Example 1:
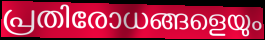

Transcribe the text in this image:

പ്രതിരോധങ്ങളെയും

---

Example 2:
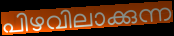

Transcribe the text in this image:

പിഴവിലാക്കുന്ന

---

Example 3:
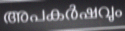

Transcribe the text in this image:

അപകർഷവും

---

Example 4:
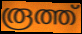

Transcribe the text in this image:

രൂത്ത്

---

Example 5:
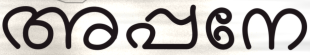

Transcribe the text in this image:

അപ്പനേ